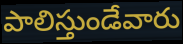
పాలిస్తుండేవారు